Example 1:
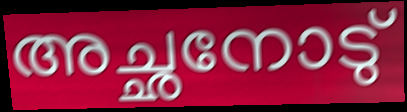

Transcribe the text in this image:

അച്ഛനോടു്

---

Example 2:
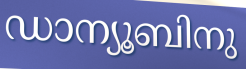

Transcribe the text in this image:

ഡാന്യൂബിനു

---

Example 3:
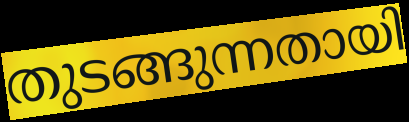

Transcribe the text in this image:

തുടങ്ങുന്നതായി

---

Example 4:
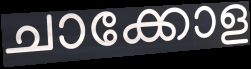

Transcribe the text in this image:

ചാക്കോള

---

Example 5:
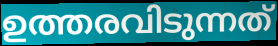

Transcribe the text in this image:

ഉത്തരവിടുന്നത്